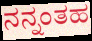
ನನ್ನಂತಹ